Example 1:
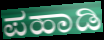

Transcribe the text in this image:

ಪಹಾಡಿ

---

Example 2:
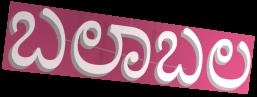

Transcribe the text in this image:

ಬಲಾಬಲ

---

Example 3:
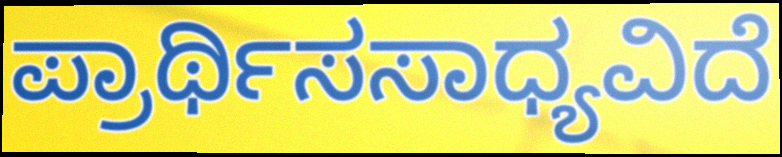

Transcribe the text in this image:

ಪ್ರಾರ್ಥಿಸಸಾಧ್ಯವಿದೆ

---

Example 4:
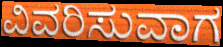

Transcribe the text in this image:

ವಿವರಿಸುವಾಗ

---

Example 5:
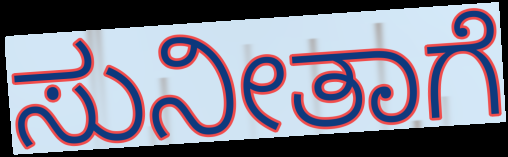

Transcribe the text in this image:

ಸುನೀತಾಗೆ